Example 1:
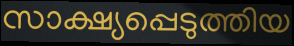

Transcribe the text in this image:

സാക്ഷ്യപ്പെടുത്തിയ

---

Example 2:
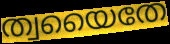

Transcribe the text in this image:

ത്വയൈതേ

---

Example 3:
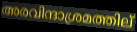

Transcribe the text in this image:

അരവിന്ദാശ്രമത്തില്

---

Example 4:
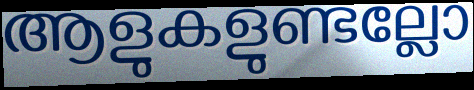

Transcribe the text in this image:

ആളുകളുണ്ടല്ലോ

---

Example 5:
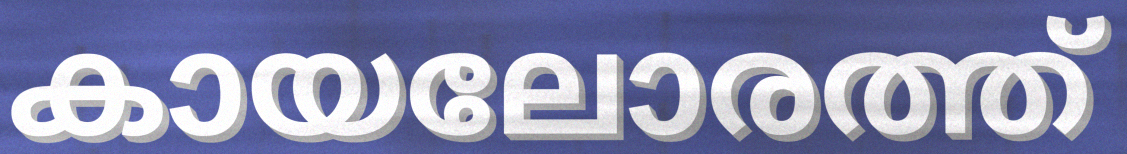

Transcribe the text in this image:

കായലോരത്ത്